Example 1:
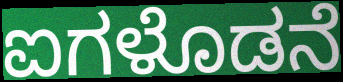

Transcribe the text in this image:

ಐಗಳೊಡನೆ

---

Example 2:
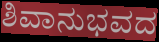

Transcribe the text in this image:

ಶಿವಾನುಭವದ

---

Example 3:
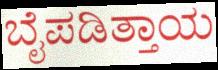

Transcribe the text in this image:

ಬೈಪಡಿತ್ತಾಯ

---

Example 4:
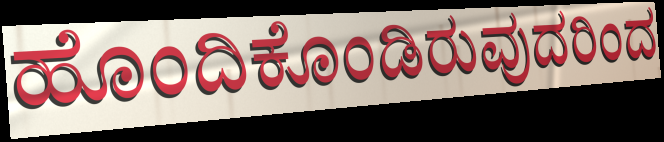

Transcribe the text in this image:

ಹೊಂದಿಕೊಂಡಿರುವುದರಿಂದ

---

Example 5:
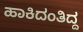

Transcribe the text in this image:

ಹಾಕಿದಂತಿದ್ದ